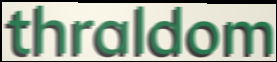
thraldom